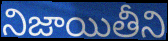
నిజాయితీని